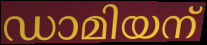
ഡാമിയന്